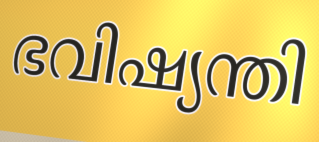
ഭവിഷ്യന്തി